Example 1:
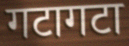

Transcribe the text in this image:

गटागटा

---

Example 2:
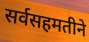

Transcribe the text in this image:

सर्वसहमतीने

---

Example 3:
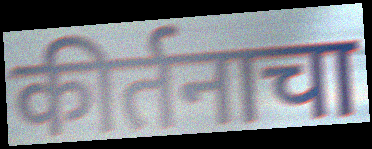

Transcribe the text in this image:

कीर्तनाचा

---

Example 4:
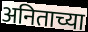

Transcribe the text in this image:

अनिताच्या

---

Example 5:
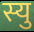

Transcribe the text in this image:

स्यु